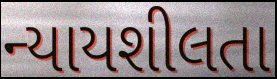
ન્યાયશીલતા